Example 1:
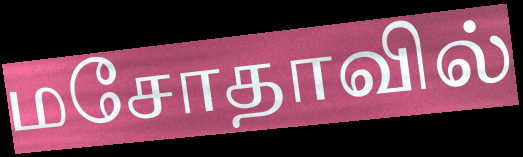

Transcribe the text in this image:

மசோதாவில்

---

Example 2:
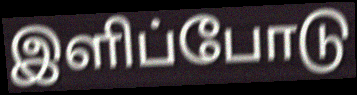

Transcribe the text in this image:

இளிப்போடு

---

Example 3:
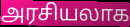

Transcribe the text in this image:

அரசியலாக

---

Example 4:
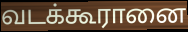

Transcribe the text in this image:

வடக்கூரானை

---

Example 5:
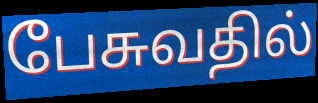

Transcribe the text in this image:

பேசுவதில்